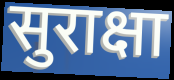
सुराक्षा